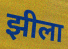
झीला